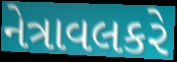
નેત્રાવલકરે